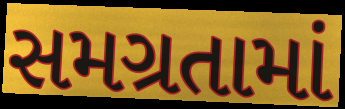
સમગ્રતામાં